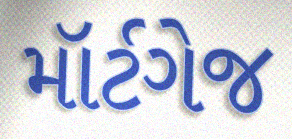
મૉર્ટગેજ